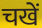
चखें